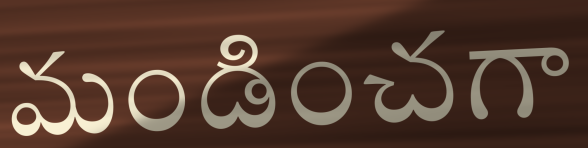
మండించగా